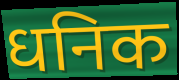
धनिक